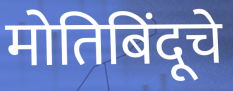
मोतिबिंदूचे